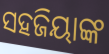
ସହଜିୟାଙ୍କ